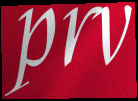
prv